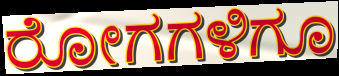
ರೋಗಗಳಿಗೂ